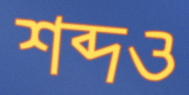
শব্দও